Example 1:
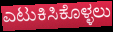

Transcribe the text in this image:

ಎಟುಕಿಸಿಕೊಳ್ಳಲು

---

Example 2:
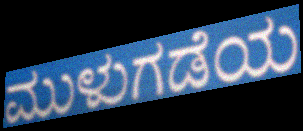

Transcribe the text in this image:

ಮುಳುಗಡೆಯ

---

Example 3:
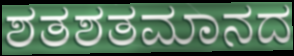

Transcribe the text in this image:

ಶತಶತಮಾನದ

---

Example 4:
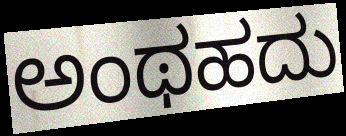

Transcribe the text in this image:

ಅಂಥಹದು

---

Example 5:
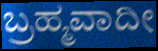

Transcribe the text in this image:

ಬ್ರಹ್ಮವಾದೀ